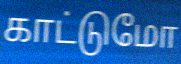
காட்டுமோ